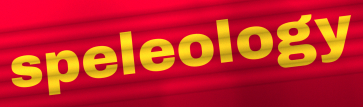
speleology